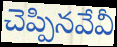
చెప్పినవేవీ